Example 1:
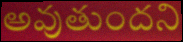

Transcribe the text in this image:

అవుతుందని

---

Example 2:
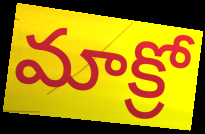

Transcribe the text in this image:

మాక్రో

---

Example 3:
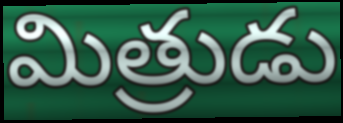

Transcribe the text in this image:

మిత్రుడు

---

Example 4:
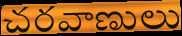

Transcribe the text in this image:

చరవాణులు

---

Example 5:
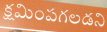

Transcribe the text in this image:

క్షమింపగలడని